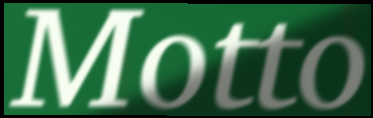
Motto